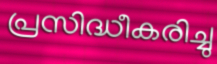
പ്രസിദ്ധീകരിച്ചു